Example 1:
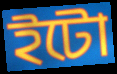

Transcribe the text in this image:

ইটো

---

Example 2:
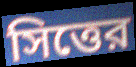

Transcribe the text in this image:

সিত্তের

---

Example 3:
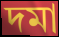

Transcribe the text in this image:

দমা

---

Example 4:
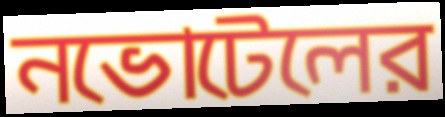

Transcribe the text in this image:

নভোটেলের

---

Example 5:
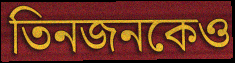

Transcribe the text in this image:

তিনজনকেও